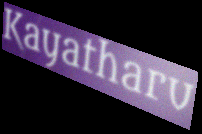
Kayatharu